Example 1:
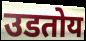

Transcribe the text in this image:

उडतोय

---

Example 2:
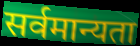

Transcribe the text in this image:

सर्वमान्यता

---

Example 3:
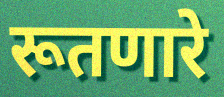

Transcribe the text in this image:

रूतणारे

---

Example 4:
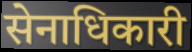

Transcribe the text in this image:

सेनाधिकारी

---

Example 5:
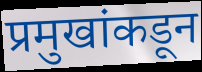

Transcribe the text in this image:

प्रमुखांकडून